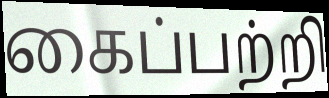
கைப்பற்றி